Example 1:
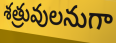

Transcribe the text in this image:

శత్రువులనుగా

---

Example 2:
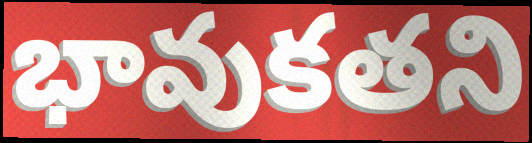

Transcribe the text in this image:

భావుకతని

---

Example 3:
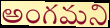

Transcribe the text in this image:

అంగమని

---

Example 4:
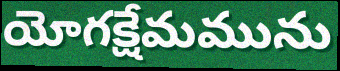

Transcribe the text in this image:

యోగక్షేమమును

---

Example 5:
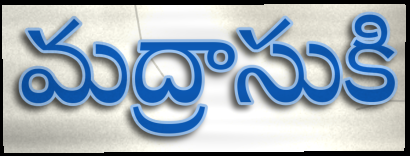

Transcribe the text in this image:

మద్రాసుకి